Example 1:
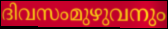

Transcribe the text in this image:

ദിവസംമുഴുവനും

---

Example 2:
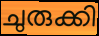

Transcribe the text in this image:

ചുരുക്കി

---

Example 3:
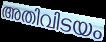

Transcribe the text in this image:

അതിവിടയം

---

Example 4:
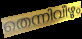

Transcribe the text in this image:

തെന്നിവീഴും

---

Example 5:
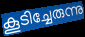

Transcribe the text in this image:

കൂടിച്ചേരുന്നു